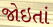
જોઇતાં